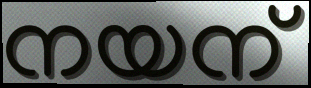
നയന്